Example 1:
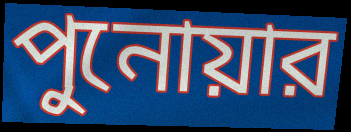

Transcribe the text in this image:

পুনোয়ার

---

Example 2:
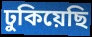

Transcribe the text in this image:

ঢুকিয়েছি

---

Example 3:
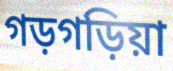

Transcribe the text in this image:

গড়গড়িয়া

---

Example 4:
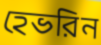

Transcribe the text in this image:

হেভরিন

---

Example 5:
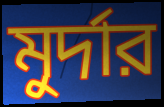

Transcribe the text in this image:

মুর্দার